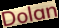
Dolan